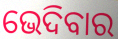
ଭେଦିବାର